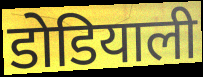
डोडियाली